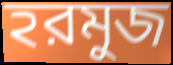
হরমুজ